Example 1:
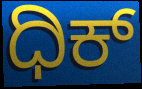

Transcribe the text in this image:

ಧಿಕ್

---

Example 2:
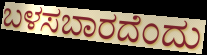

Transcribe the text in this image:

ಬಳಸಬಾರದೆಂದು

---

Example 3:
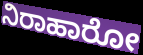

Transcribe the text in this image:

ನಿರಾಹಾರೋ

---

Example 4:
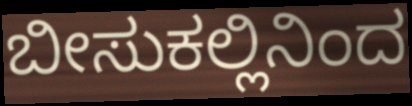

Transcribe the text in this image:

ಬೀಸುಕಲ್ಲಿನಿಂದ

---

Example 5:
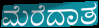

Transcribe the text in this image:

ಮೆರೆದಾತ